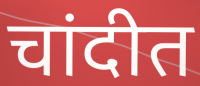
चांदीत